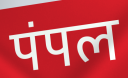
पंपल